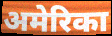
अमेरिका